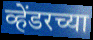
व्हेंडरच्या